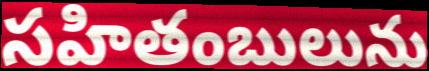
సహితంబులును